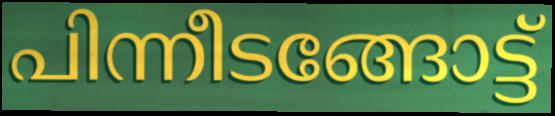
പിന്നീടങ്ങോട്ട്